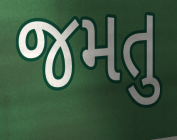
જમતુ